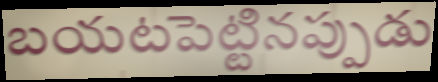
బయటపెట్టినప్పుడు